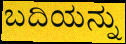
ಬದಿಯನ್ನು